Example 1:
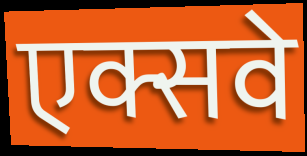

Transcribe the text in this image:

एक्सवे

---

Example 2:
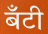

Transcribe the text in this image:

बँटी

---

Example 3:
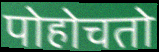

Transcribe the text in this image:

पोहोचतो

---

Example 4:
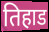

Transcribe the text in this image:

तिहाड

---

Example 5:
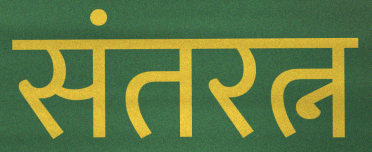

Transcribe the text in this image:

संतरत्न